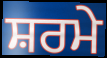
ਸ਼ਰਮੇ